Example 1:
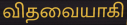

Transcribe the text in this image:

விதவையாகி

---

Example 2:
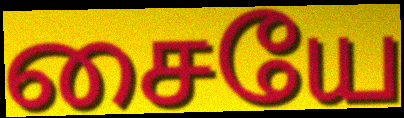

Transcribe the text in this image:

சையே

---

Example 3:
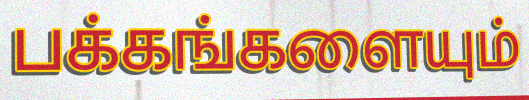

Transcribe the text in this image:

பக்கங்களையும்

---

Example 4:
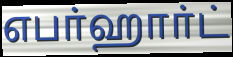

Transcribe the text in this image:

எபர்ஹார்ட்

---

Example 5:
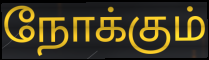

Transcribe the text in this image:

நோக்கும்